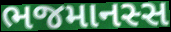
ભજમાનસ્સ